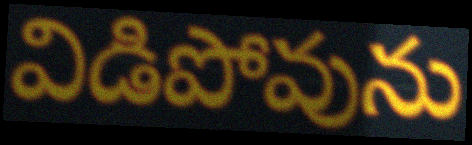
విడిపోవును